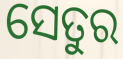
ସେତୁର